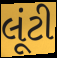
લૂંટી